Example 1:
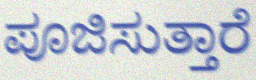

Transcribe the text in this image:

ಪೂಜಿಸುತ್ತಾರೆ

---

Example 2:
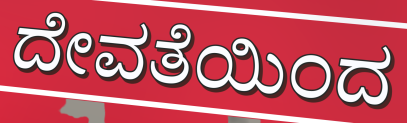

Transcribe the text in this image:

ದೇವತೆಯಿಂದ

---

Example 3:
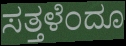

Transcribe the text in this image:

ಸತ್ತಳೆಂದೂ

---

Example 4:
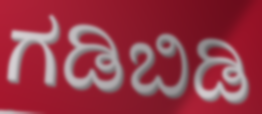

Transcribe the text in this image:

ಗಡಿಬಿಡಿ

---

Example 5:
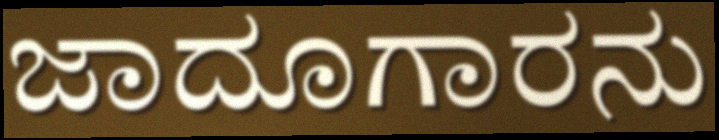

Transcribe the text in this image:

ಜಾದೂಗಾರನು